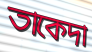
তাকেদা